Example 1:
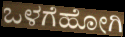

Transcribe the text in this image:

ಒಳಗೆಹೋಗಿ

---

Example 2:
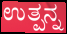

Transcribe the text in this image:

ಉತ್ಪನ್ನ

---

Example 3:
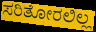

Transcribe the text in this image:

ಸರಿತೋರಲಿಲ್ಲ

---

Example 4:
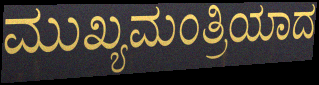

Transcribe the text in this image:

ಮುಖ್ಯಮಂತ್ರಿಯಾದ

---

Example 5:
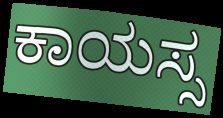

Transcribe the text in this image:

ಕಾಯಸ್ಸ